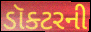
ડૉક્ટરની